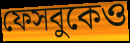
ফেসবুকেও